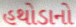
હથોડાનો